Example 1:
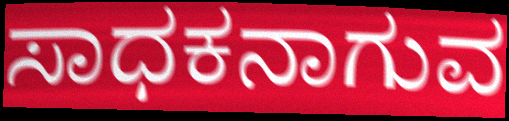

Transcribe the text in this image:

ಸಾಧಕನಾಗುವ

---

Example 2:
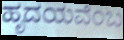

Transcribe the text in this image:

ಹೃದಯವೆಂಬ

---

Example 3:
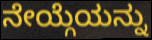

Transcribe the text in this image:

ನೇಯ್ಗೆಯನ್ನು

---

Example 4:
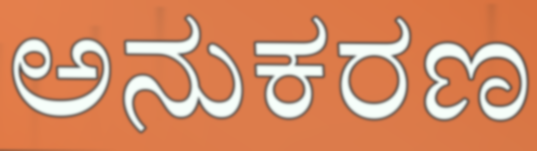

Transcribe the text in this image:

ಅನುಕರಣ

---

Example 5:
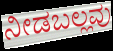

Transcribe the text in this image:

ನೀಡಬಲ್ಲವು